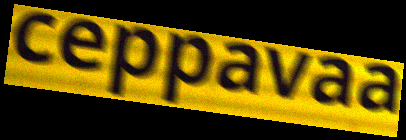
ceppavaa